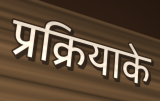
प्रक्रियाके